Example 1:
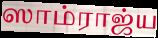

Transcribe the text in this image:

ஸாம்ராஜ்ய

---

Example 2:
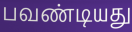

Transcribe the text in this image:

பவண்டியது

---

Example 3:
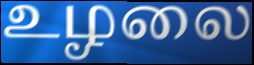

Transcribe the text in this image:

உழலை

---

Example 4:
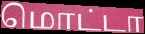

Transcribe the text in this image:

மொட்டா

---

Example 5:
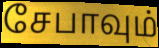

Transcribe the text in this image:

சேபாவும்